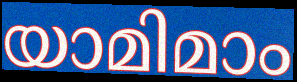
യാമിമാം